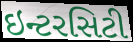
ઇન્ટરસિટી